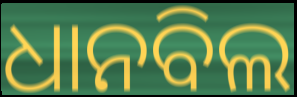
ଧାନବିଲ